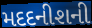
મદદનીશની